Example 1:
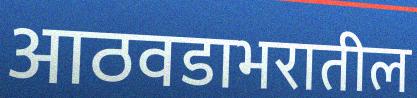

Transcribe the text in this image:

आठवडाभरातील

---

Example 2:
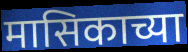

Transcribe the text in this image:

मासिकाच्या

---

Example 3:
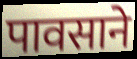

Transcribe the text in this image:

पावसाने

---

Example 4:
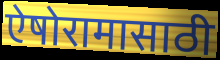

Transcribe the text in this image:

ऐषोरामासाठी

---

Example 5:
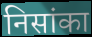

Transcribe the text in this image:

निसांका